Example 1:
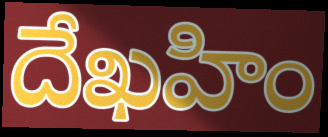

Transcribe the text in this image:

దేఖహిం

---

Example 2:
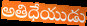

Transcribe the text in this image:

అతిధేయుడు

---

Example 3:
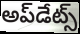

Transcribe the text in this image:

అప్‌డేట్స్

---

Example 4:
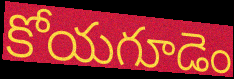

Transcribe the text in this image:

కోయగూడెం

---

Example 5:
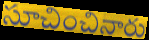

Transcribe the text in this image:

సూచించినారు